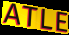
ATLE